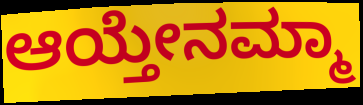
ಆಯ್ತೇನಮ್ಮಾ